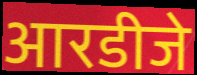
आरडीजे